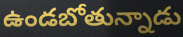
ఉండబోతున్నాడు